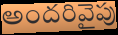
అందరివైపు